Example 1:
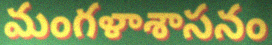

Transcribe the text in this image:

మంగళాశాసనం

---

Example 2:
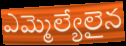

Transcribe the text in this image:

ఎమ్మెల్యేలైన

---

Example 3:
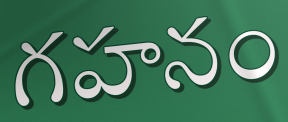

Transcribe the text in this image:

గహనం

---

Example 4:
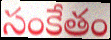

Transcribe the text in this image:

సంకేతం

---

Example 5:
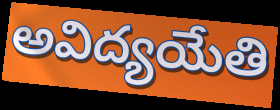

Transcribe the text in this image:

అవిద్యయేతి